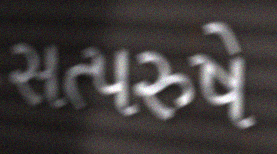
સત્પરુષે